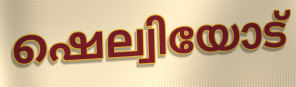
ഷെല്വിയോട്